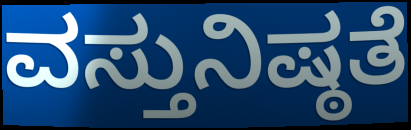
ವಸ್ತುನಿಷ್ಠತೆ